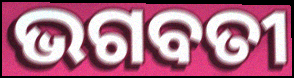
ଭଗବତୀ